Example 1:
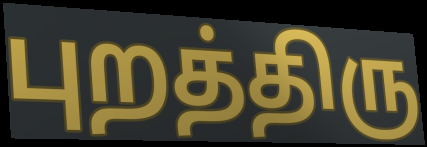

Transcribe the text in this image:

புறத்திரு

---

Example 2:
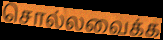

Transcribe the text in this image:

சொல்லவைக்க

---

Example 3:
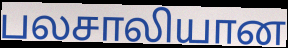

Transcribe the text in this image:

பலசாலியான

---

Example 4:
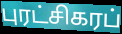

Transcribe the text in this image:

புரட்சிகரப்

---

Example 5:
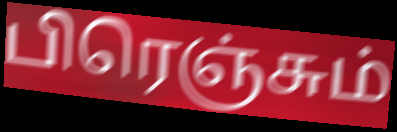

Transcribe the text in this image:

பிரெஞ்சும்